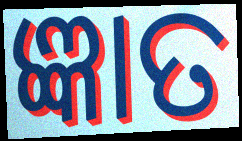
ଜ୍ଞାତ